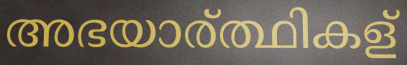
അഭയാര്ത്ഥികള്